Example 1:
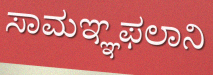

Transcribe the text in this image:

ಸಾಮಞ್ಞಫಲಾನಿ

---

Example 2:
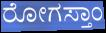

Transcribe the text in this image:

ರೋಗಸ್ತಾಂ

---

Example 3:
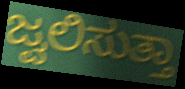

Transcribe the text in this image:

ಜ್ವಲಿಸುತ್ತಾ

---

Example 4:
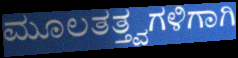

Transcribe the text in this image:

ಮೂಲತತ್ತ್ವಗಳಿಗಾಗಿ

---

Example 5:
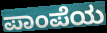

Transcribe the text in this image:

ಪಾಂಪೆಯ